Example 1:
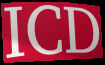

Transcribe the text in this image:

ICD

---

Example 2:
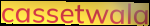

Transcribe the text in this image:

cassetwala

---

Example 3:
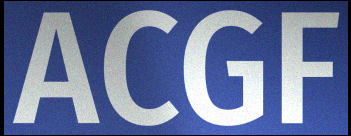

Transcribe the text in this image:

ACGF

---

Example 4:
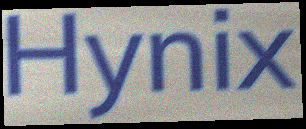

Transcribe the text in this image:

Hynix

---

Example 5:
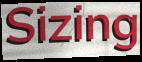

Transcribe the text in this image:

Sizing